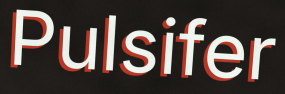
Pulsifer